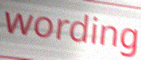
wording